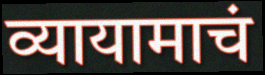
व्यायामाचं